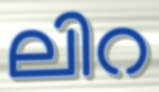
ലിറ